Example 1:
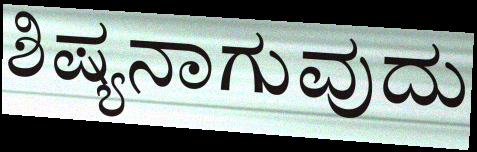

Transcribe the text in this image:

ಶಿಷ್ಯನಾಗುವುದು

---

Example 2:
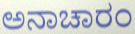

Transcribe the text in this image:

ಅನಾಚಾರಂ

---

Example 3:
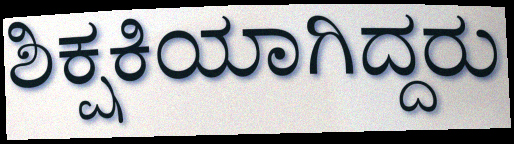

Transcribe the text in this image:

ಶಿಕ್ಷಕಿಯಾಗಿದ್ದರು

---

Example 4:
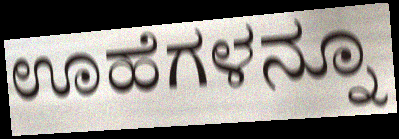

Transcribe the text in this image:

ಊಹೆಗಳನ್ನೂ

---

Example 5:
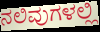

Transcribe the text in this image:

ನಲಿವುಗಳಲ್ಲಿ